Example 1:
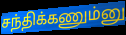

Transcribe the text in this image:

சந்திக்கணும்னு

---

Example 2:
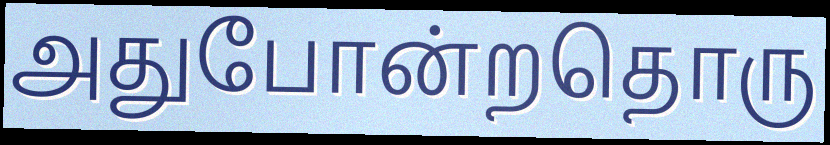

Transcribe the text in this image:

அதுபோன்றதொரு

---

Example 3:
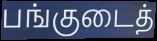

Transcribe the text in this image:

பங்குடைத்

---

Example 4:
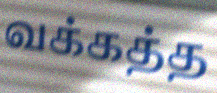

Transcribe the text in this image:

வக்கத்த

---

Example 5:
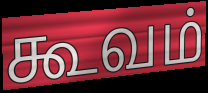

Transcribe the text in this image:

கூவம்